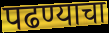
पढण्याचा